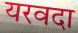
यरवदा